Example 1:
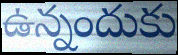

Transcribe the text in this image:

ఉన్నందుకు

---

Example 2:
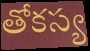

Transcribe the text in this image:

తోకస్య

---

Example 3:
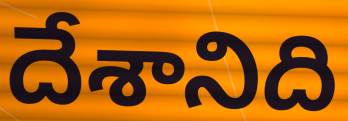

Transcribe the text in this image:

దేశానిది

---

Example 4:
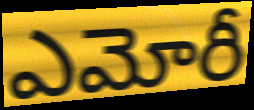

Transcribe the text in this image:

ఎమోరీ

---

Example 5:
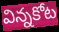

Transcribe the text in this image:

విన్నకోట